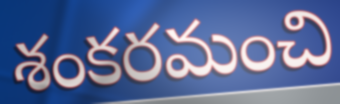
శంకరమంచి